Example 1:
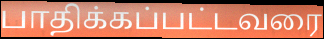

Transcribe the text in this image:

பாதிக்கப்பட்டவரை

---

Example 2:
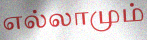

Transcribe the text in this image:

எல்லாமும்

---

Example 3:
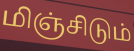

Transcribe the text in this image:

மிஞ்சிடும்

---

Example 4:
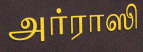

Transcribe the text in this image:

அர்ராஸி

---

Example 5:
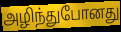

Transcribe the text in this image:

அழிந்துபோனது